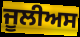
ਜੂਲੀਅਸ